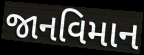
જાનવિમાન